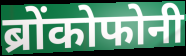
ब्रोंकोफोनी